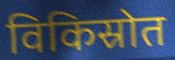
विकिस्रोत